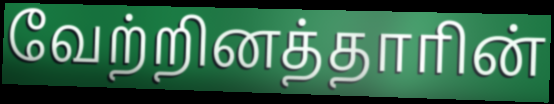
வேற்றினத்தாரின்